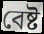
বেষ্ট